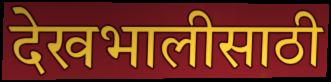
देखभालीसाठी